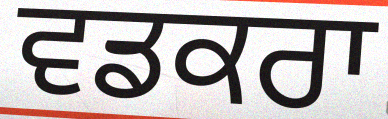
ਵਡਕਰਾ